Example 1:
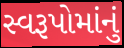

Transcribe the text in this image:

સ્વરૂપોમાંનું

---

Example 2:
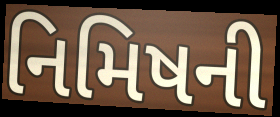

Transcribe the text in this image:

નિમિષની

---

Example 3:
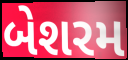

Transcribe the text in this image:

બેશરમ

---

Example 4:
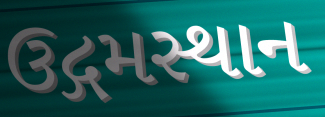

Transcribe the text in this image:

ઉદ્ગમસ્થાન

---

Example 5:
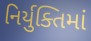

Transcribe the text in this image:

નિર્યુક્તિમાં